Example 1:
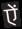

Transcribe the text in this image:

ऐं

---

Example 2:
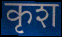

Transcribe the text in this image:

कृश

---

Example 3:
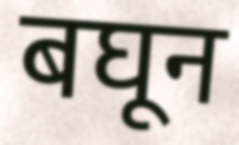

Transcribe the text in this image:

बघून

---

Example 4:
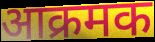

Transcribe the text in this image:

आक्रमक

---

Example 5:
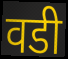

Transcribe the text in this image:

वडी